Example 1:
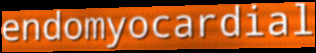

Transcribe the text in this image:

endomyocardial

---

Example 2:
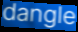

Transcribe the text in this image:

dangle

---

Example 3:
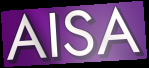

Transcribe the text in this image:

AISA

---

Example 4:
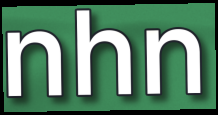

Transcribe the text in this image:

nhn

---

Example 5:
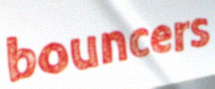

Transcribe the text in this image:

bouncers